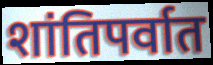
शांतिपर्वात